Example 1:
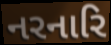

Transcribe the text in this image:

નરનારિ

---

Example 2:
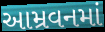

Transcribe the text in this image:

આમ્રવનમાં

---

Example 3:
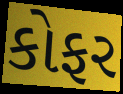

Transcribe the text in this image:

કોફર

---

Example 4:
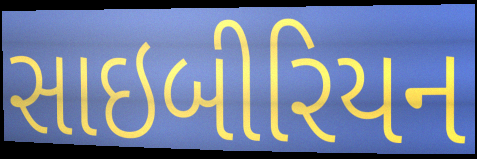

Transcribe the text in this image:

સાઇબીરિયન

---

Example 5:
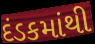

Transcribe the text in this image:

દંડકમાંથી